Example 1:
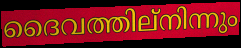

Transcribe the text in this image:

ദൈവത്തില്നിന്നും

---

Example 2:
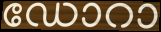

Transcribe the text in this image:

ഡോറാ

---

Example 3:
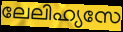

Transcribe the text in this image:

ലേലിഹ്യസേ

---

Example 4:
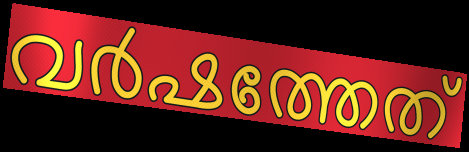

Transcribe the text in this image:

വർഷത്തേത്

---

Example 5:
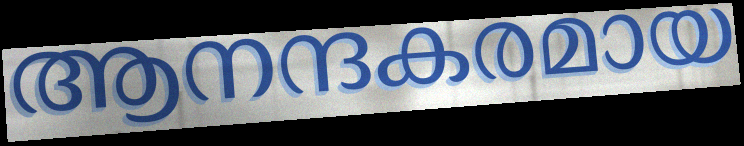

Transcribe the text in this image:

ആനന്ദകരമായ